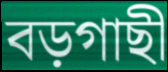
বড়গাছী